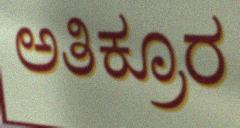
ಅತಿಕ್ರೂರ